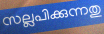
സല്ലപിക്കുന്നതു